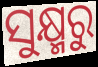
ସୁକ୍ଷ୍ମରୁ